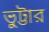
ভুট্টার